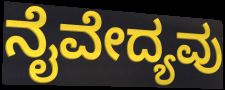
ನೈವೇದ್ಯವು